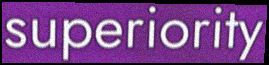
superiority